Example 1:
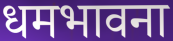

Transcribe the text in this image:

धमभावना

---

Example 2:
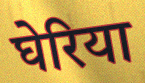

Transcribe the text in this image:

घेरिया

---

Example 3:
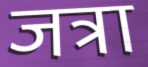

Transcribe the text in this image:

जत्रा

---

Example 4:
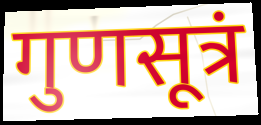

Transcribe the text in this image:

गुणसूत्रं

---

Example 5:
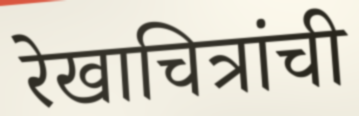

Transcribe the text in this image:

रेखाचित्रांची